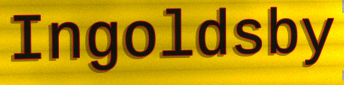
Ingoldsby